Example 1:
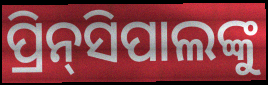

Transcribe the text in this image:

ପ୍ରିନ୍‌ସିପାଲଙ୍କୁ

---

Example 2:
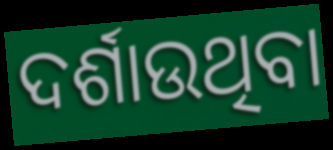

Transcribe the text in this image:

ଦର୍ଶାଉଥିବା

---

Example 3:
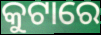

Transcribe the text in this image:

କୁଟାରେ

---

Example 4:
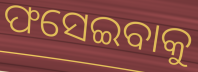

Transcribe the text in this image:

ଫସେଇବାକୁ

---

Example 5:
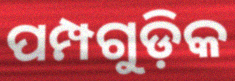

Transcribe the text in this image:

ପମ୍ପଗୁଡ଼ିକ